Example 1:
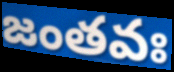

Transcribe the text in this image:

జంతవః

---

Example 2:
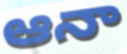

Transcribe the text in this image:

ఆనా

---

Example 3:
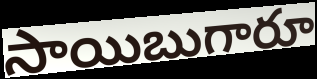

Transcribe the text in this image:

సాయిబుగారూ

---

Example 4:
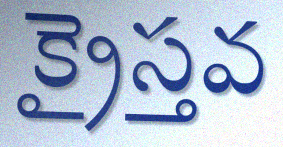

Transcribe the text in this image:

క్రైస్తవ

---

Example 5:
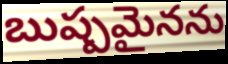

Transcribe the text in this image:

బుష్పమైనను